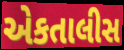
એકતાલીસ